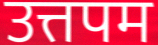
उत्तपम